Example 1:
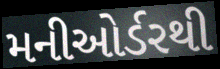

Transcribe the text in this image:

મનીઓર્ડરથી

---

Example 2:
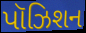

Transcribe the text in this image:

પૉઝિશન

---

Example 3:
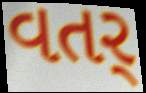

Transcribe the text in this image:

વતર્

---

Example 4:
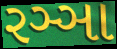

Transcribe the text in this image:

રઞ્ઞા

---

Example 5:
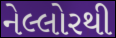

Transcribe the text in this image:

નેલ્લોરથી